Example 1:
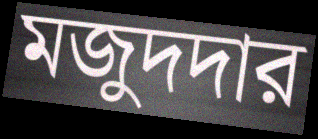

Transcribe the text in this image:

মজুদদার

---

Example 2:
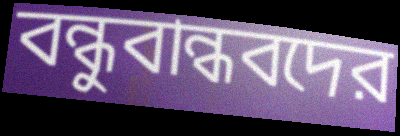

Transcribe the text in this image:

বন্ধুবান্ধবদের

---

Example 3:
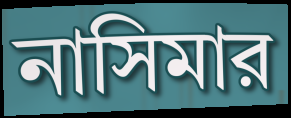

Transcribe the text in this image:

নাসিমার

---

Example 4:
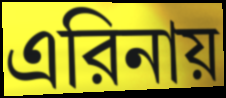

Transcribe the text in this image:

এরিনায়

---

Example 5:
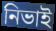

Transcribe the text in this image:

নিভাই